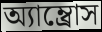
অ্যাম্ব্রোস